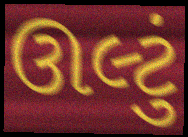
ઊલ્ટું